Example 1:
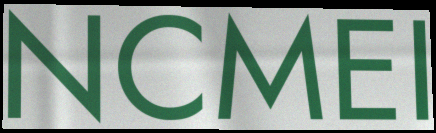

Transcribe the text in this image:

NCMEI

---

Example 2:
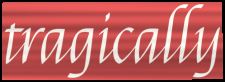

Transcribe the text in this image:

tragically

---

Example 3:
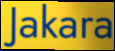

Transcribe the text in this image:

Jakara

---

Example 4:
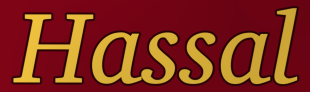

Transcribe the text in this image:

Hassal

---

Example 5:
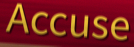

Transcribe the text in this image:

Accuse